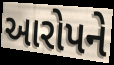
આરોપને